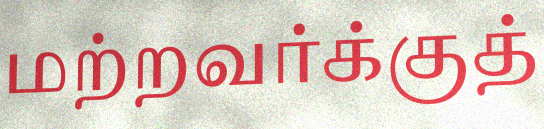
மற்றவர்க்குத்